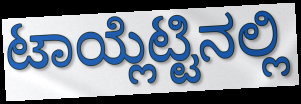
ಟಾಯ್ಲೆಟ್ಟಿನಲ್ಲಿ